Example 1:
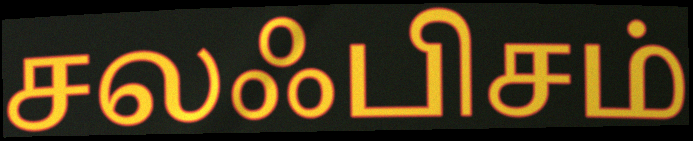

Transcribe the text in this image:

சலஃபிசம்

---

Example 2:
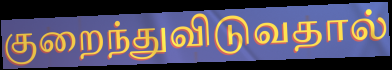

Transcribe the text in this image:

குறைந்துவிடுவதால்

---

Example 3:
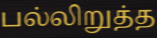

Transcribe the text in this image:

பல்லிறுத்த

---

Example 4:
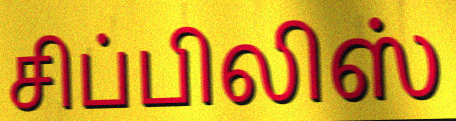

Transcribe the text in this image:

சிப்பிலிஸ்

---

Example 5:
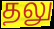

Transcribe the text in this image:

தலு